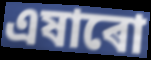
এষাৰো